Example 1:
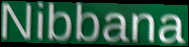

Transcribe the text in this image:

Nibbana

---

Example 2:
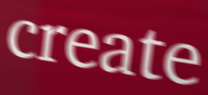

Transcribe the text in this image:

create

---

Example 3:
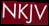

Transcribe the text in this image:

NKJV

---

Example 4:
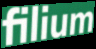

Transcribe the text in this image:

filium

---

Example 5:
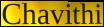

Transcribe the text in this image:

Chavithi